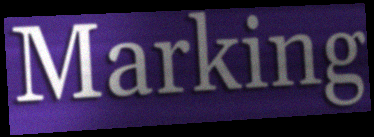
Marking